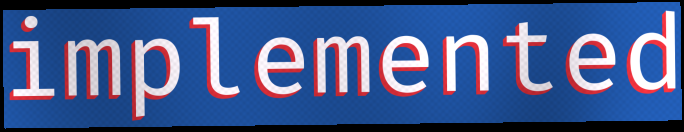
implemented